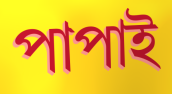
পাপাই